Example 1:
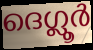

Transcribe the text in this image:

ദെഗ്ലൂർ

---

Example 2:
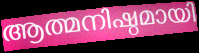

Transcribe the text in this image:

ആത്മനിഷ്ഠമായി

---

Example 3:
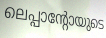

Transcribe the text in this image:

ലെപ്പാന്റോയുടെ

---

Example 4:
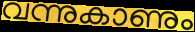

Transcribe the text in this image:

വന്നുകാണും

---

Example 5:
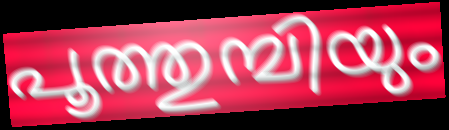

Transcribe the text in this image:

പൂത്തുമ്പിയും